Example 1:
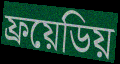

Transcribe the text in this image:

ফ্রয়েডিয়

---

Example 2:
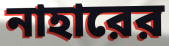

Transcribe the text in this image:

নাহারের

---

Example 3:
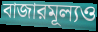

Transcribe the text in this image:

বাজারমূল্যও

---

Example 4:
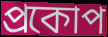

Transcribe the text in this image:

প্রকোপ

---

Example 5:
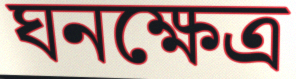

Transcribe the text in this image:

ঘনক্ষেত্র